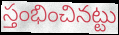
స్తంభించినట్టు